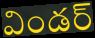
విండర్